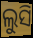
ଲୁସି